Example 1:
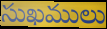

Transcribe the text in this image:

సుఖములు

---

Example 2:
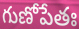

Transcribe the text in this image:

గుణోపేతః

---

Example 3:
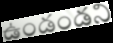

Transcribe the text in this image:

ఉండండని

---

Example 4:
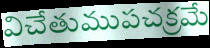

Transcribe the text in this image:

విచేతుముపచక్రమే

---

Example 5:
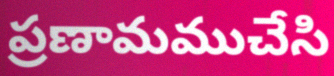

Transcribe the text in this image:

ప్రణామముచేసి